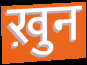
ख़ुन